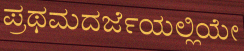
ಪ್ರಥಮದರ್ಜೆಯಲ್ಲಿಯೇ